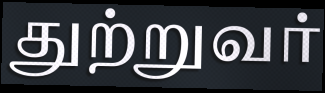
துற்றுவர்